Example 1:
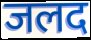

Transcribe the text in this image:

जलद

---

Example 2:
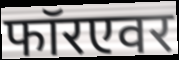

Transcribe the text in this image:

फॉरएवर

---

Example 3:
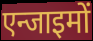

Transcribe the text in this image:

एन्जाइमों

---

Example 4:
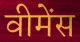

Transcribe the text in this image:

वीमेंस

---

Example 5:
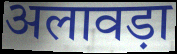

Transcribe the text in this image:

अलावड़ा